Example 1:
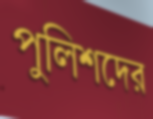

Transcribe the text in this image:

পুলিশদের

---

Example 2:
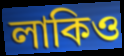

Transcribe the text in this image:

লাকিও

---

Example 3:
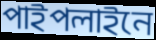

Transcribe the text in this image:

পাইপলাইনে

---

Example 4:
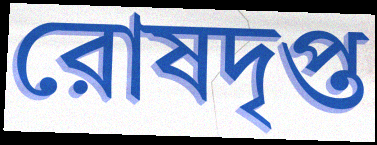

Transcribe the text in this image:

রোষদৃপ্ত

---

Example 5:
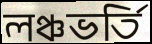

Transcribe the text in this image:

লঞ্চভর্তি